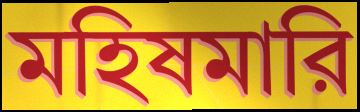
মহিষমারি